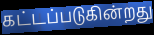
கட்டப்படுகின்றது